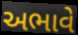
અભાવે